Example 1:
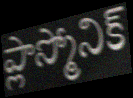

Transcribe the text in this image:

ప్లాస్మోనిక్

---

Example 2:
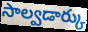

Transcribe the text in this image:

సాల్వడార్కు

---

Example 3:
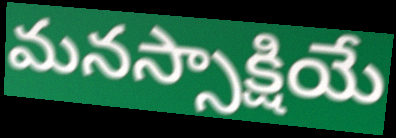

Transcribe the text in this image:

మనస్సాక్షియే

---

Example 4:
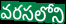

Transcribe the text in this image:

వరసలోని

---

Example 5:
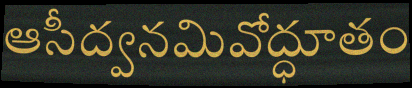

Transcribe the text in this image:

ఆసీద్వనమివోద్ధూతం